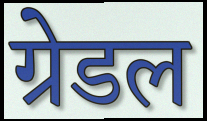
ग्रेडल